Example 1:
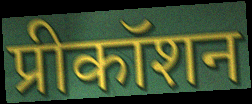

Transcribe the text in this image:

प्रीकॉशन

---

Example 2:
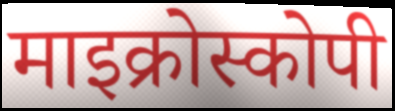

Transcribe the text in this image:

माइक्रोस्कोपी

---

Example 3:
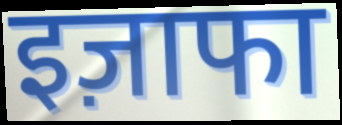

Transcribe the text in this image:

इज़ाफा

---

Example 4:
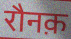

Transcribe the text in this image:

रौनक़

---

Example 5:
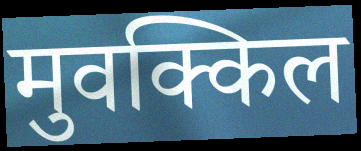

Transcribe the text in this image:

मुवक्किल